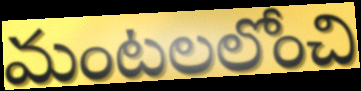
మంటలలోంచి